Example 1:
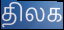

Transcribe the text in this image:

திலக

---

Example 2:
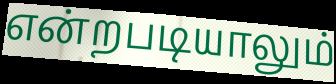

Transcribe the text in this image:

என்றபடியாலும்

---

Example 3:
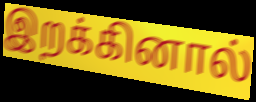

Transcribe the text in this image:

இறக்கினால்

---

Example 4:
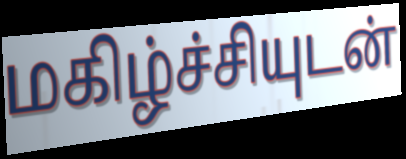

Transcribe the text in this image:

மகிழ்ச்சியுடன்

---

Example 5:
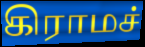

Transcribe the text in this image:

கிராமச்